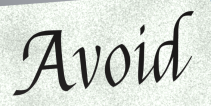
Avoid